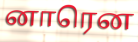
னாரென